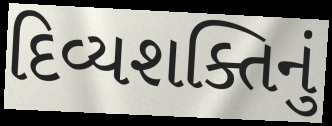
દિવ્યશક્તિનું